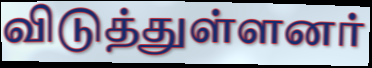
விடுத்துள்ளனர்